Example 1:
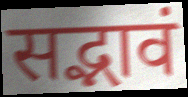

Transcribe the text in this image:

सद्भावं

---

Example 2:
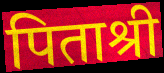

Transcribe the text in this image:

पिताश्री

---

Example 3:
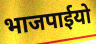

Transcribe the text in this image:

भाजपाईयो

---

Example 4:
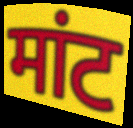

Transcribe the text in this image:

मांट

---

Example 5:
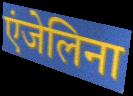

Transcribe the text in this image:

एंजेलिना